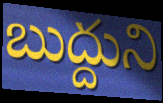
బుద్దుని